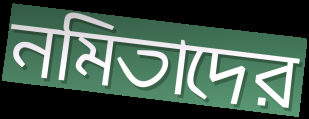
নমিতাদের